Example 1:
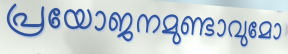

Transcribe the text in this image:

പ്രയോജനമുണ്ടാവുമോ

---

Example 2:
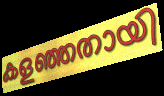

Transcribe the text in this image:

കളഞ്ഞതായി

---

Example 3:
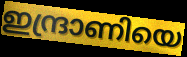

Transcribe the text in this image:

ഇന്ദ്രാണിയെ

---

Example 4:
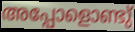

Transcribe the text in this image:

അപ്പോളൊണ്ടു്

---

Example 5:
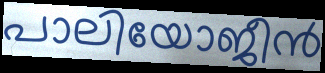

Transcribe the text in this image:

പാലിയോജീൻ